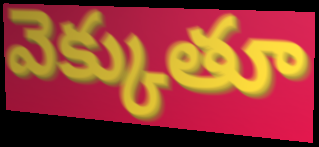
వెక్కుతూ